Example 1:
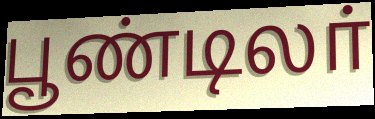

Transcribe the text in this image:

பூண்டிலர்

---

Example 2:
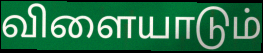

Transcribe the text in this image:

விளையாடும்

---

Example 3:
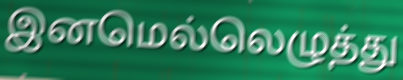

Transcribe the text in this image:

இனமெல்லெழுத்து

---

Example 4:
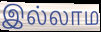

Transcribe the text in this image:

இல்லாம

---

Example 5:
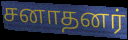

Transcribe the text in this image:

சனாதனர்